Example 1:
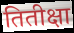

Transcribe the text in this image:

तितीक्षा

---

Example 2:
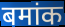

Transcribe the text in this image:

बमांक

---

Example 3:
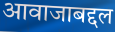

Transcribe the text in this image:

आवाजाबद्दल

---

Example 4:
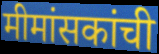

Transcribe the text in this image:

मीमांसकांची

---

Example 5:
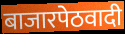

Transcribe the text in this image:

बाजारपेठवादी